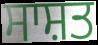
ਸਾਸ਼ਤ